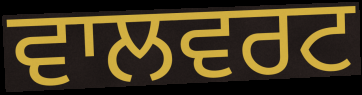
ਵਾਲਵਰਟ